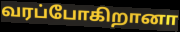
வரப்போகிறானா